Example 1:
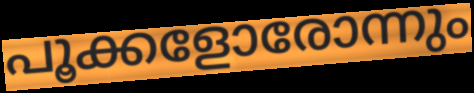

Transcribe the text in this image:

പൂക്കളോരോന്നും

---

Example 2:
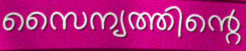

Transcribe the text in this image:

സൈന്യത്തിന്റെ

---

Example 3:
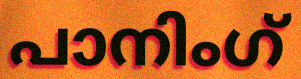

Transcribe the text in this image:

പാനിംഗ്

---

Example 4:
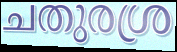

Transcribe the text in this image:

ചതുരശ്ര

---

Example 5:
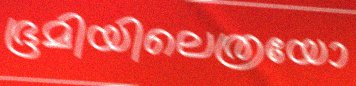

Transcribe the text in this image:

ഭൂമിയിലെത്രയോ